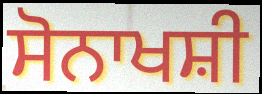
ਸੋਨਾਖਸ਼ੀ